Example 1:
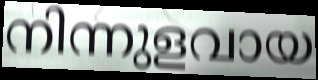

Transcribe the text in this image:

നിന്നുളവായ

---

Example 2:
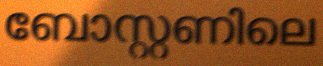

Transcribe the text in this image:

ബോസ്റ്റണിലെ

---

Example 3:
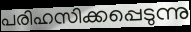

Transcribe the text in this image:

പരിഹസിക്കപ്പെടുന്നു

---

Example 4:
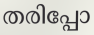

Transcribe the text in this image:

തരിപ്പോ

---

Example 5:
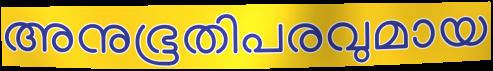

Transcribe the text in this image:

അനുഭൂതിപരവുമായ